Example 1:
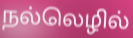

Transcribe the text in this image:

நல்லெழில்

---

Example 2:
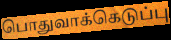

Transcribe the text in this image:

பொதுவாக்கெடுப்பு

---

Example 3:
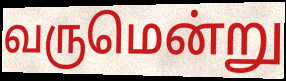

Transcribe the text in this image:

வருமென்று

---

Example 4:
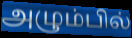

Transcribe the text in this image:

அழும்பில்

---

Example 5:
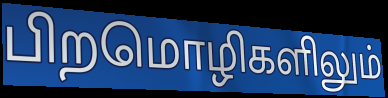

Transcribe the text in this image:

பிறமொழிகளிலும்